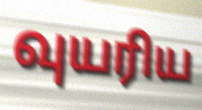
வுயரிய